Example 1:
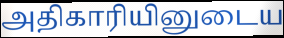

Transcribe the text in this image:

அதிகாரியினுடைய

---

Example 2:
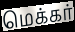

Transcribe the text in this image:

மெக்கர்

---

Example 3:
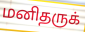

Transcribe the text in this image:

மனிதருக்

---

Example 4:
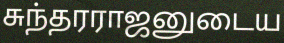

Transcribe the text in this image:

சுந்தரராஜனுடைய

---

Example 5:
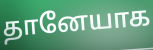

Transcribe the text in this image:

தானேயாக